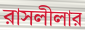
রাসলীলার